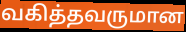
வகித்தவருமான